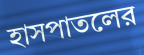
হাসপাতলের